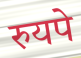
रुयपे